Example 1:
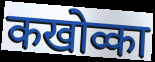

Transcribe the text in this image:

कखोव्का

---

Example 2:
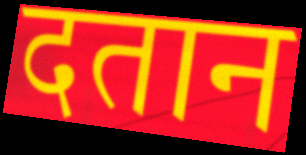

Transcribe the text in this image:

दतान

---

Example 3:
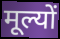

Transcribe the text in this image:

मूल्यों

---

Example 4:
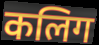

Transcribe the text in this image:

कलिग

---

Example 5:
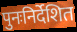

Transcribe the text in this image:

पुनःनिर्देशित